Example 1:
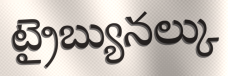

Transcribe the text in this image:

ట్రైబ్యునల్కు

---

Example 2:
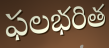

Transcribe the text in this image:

ఫలభరిత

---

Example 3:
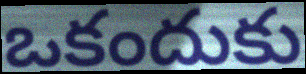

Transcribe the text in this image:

ఒకందుకు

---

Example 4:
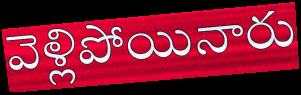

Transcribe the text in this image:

వెళ్లిపోయినారు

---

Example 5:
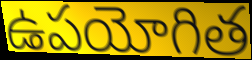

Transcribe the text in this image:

ఉపయోగిత